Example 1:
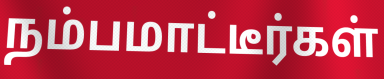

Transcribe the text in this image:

நம்பமாட்டீர்கள்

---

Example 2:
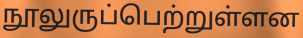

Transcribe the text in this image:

நூலுருப்பெற்றுள்ளன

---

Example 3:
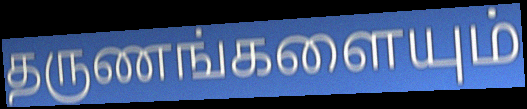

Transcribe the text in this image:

தருணங்களையும்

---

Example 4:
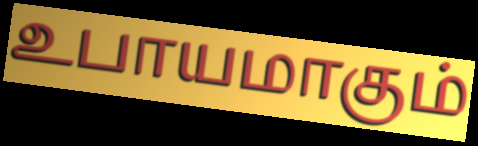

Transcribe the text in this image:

உபாயமாகும்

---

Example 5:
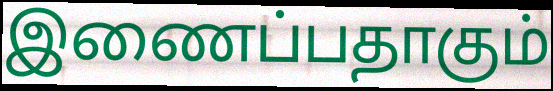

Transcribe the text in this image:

இணைப்பதாகும்